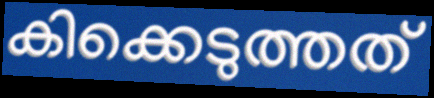
കിക്കെടുത്തത്